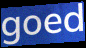
goed